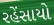
રહેંસાયો